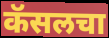
कॅसलचा